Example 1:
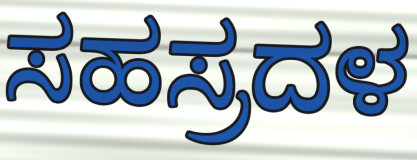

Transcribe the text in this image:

ಸಹಸ್ರದಳ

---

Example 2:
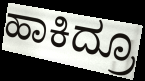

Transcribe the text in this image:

ಹಾಕಿದ್ರೂ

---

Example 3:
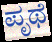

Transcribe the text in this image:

ಪೃಥೆ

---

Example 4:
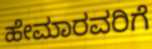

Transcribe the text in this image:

ಹೇಮಾರವರಿಗೆ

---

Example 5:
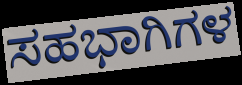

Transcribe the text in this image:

ಸಹಭಾಗಿಗಳ